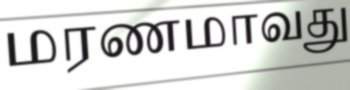
மரணமாவது